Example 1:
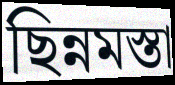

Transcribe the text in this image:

ছিন্নমস্তা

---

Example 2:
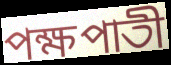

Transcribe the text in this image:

পক্ষপাতী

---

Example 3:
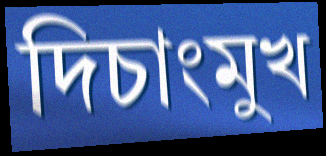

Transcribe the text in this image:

দিচাংমুখ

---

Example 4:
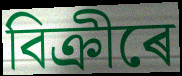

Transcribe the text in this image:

বিক্ৰীৰে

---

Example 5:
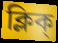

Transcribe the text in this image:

ক্লিক্